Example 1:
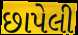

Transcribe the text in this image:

છાપેલી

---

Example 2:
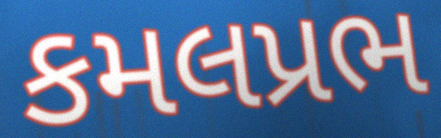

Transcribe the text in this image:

કમલપ્રભ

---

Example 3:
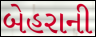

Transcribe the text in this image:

બેહરાની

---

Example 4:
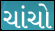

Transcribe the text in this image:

ચાંચો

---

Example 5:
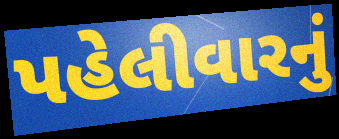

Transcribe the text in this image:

પહેલીવારનું